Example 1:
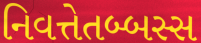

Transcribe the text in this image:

નિવત્તેતબ્બસ્સ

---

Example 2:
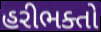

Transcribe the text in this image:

હરીભક્તો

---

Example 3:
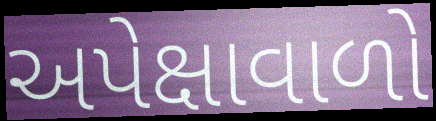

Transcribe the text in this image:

અપેક્ષાવાળો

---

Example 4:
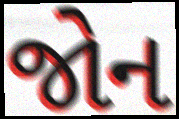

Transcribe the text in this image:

જોન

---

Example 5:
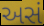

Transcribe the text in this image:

અસં